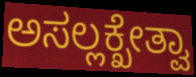
ಅಸಲ್ಲಕ್ಖೇತ್ವಾ